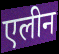
एलीन